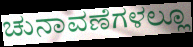
ಚುನಾವಣೆಗಳಲ್ಲೂ